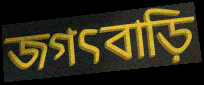
জগৎবাড়ি